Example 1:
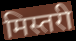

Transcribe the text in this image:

मिस्तरी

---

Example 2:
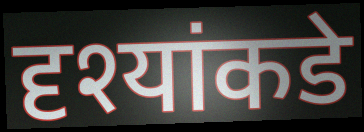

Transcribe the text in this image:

दृश्यांकडे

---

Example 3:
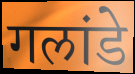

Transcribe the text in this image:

गलांडे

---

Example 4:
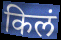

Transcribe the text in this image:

किलं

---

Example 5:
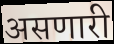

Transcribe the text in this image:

असणारी